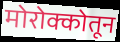
मोरोक्कोतून